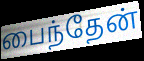
பைந்தேன்